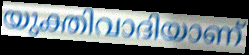
യുക്തിവാദിയാണ്